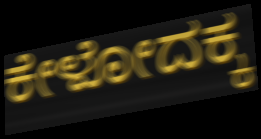
ಕೇಳೋದಕ್ಕ